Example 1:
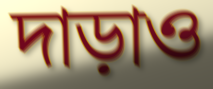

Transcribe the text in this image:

দাড়াও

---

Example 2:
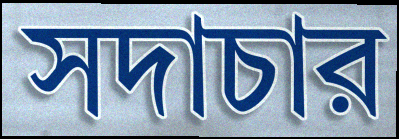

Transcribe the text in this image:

সদাচার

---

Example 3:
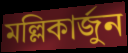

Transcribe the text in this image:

মল্লিকার্জুন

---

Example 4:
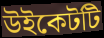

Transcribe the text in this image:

উইকেটটি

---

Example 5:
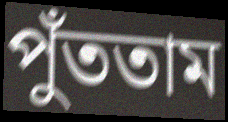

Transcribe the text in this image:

পুঁততাম